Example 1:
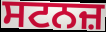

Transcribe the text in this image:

ਸਟਨਜ਼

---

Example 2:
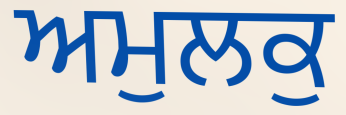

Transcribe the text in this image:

ਅਮੁਲਕੁ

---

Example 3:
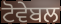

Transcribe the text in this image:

ਟੋਵੇਬਲ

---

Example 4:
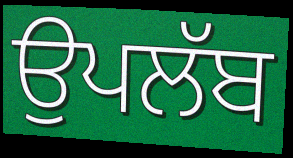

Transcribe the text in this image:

ਉਪਲੱਬ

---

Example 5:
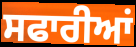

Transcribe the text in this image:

ਸਫਾਰੀਆਂ